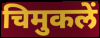
चिमुकलें